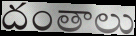
దంతాలు